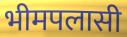
भीमपलासी